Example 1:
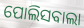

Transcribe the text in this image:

ପୋଲିସବାଲା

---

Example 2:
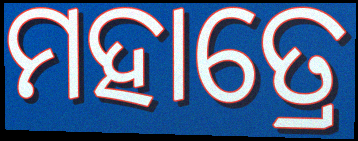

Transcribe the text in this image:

ମହାତ୍ରେ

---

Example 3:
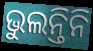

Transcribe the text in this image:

ଭୁଲନ୍ତିନି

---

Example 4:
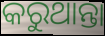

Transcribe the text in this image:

କରୁଥାନ୍ତା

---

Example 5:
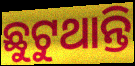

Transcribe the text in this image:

ଛୁଟୁଥାନ୍ତି